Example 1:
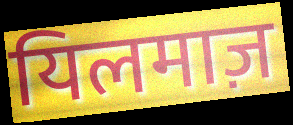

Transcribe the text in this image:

यिलमाज़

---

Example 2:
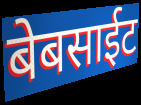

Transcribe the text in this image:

बेबसाईट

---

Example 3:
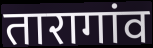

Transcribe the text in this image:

तारागांव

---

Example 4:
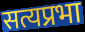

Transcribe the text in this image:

सत्यप्रभा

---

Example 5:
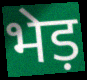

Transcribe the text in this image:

भेड़